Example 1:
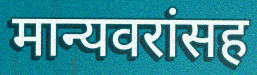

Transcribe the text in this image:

मान्यवरांसह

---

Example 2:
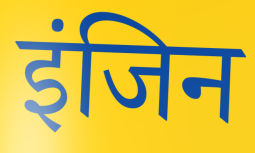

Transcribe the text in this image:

इंजिन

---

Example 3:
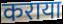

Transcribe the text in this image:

कराया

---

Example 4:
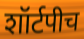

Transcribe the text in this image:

शॉर्टपीच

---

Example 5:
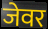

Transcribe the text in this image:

जेवर